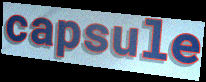
capsule